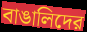
বাঙালিদের